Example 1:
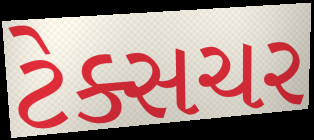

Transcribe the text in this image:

ટેક્સચર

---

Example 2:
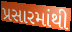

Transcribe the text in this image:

પ્રસારમાંથી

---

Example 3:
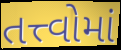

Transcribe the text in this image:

તત્ત્વોમાં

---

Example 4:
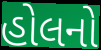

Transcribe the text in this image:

હોલનો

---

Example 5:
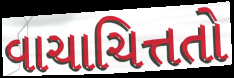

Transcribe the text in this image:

વાચાચિત્તતો